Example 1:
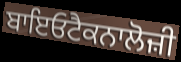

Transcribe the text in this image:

ਬਾਇਓਟੈਕਨਾਲੋਜ਼ੀ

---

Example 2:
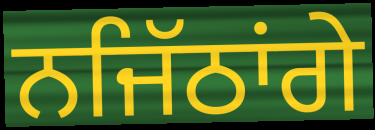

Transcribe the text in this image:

ਨਜਿੱਠਾਂਗੇ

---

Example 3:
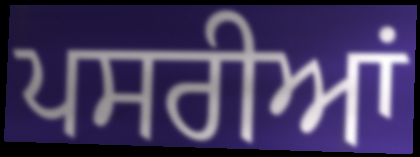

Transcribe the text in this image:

ਪਸਰੀਆਂ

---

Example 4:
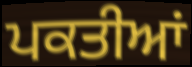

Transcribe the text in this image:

ਪਕਤੀਆਂ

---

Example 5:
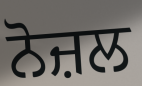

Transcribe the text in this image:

ਨੋਜ਼ਲ